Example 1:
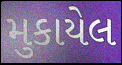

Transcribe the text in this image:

મુકાયેલ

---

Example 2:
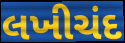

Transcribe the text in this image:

લખીચંદ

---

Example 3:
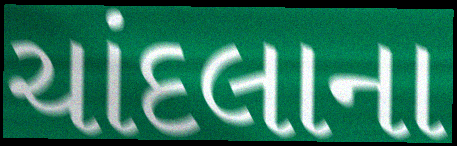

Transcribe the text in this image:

ચાંદલાના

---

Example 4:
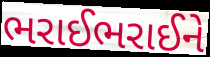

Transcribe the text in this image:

ભરાઈભરાઈને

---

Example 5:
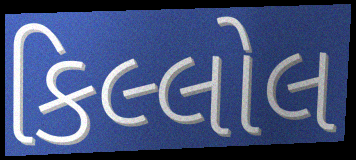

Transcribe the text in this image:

કિલ્લોલ